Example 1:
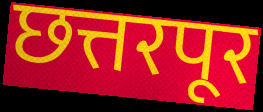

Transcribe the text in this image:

छत्तरपूर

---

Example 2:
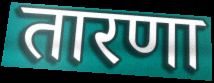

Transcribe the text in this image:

तारणा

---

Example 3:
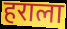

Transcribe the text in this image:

हराला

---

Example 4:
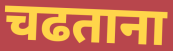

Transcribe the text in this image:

चढताना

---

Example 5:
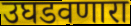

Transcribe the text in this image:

उघडवणारा